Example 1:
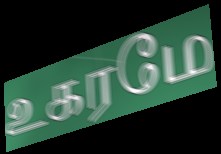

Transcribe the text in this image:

உகரமே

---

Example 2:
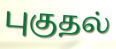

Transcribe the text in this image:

புகுதல்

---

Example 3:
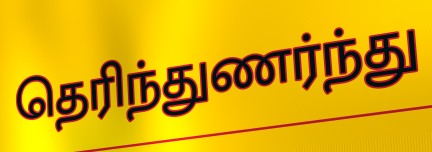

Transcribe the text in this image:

தெரிந்துணர்ந்து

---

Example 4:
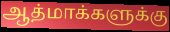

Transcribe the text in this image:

ஆத்மாக்களுக்கு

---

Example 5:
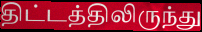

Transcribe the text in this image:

திட்டத்திலிருந்து